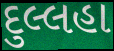
દુલ્લહા